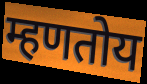
म्हणतोय